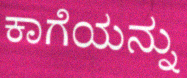
ಕಾಗೆಯನ್ನು